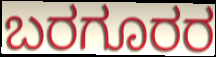
ಬರಗೂರರ